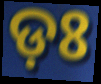
ଡ଼ଃ